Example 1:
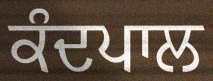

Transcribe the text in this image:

ਕੰਦਪਾਲ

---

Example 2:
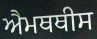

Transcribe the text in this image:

ਐਮਥਥੀਸ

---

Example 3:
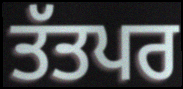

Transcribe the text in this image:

ਤੱਤਪਰ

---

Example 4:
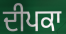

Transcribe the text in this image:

ਦੀਪਕਾ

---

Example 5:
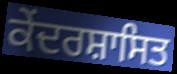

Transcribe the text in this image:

ਕੇਂਦਰਸ਼ਾਸਿਤ